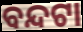
ବନ୍ଦଟା